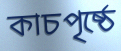
কাচপৃষ্ঠে